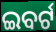
ଇବର୍ଟ